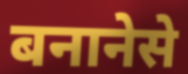
बनानेसे